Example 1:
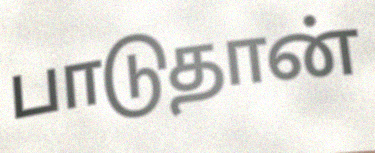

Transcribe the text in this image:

பாடுதான்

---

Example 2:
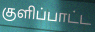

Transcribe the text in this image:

குளிப்பாட்ட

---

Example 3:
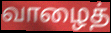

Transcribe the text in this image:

வாழைத்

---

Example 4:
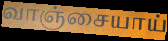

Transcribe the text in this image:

வாஞ்சையாய்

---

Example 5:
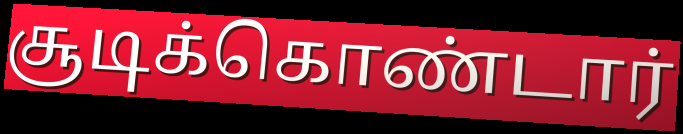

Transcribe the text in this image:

சூடிக்கொண்டார்